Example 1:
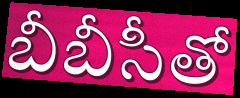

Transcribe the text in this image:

బీబీసీతో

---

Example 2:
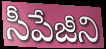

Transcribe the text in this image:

సీపేజీని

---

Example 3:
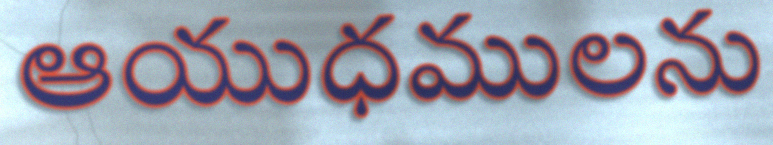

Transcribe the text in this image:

ఆయుధములను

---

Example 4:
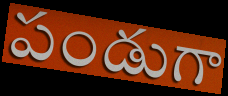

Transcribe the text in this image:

పండుగా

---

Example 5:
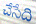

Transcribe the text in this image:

చేసేది